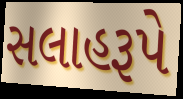
સલાહરૂપે